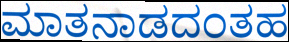
ಮಾತನಾಡದಂತಹ